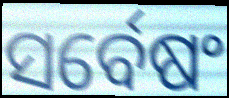
ସର୍ବେଷଂ